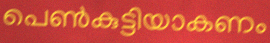
പെൺകുട്ടിയാകണം